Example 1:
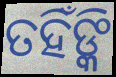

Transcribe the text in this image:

ତହିଁଙ୍କି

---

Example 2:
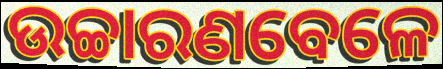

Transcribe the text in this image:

ଉଚ୍ଚାରଣବେଳେ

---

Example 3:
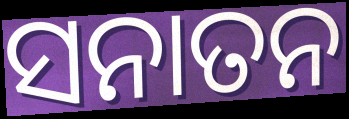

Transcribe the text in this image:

ସନାତନ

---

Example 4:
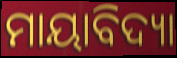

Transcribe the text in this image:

ମାୟାବିଦ୍ୟା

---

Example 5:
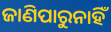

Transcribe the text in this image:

ଜାଣିପାରୁନାହିଁ